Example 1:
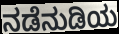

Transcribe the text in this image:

ನಡೆನುಡಿಯ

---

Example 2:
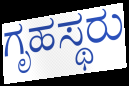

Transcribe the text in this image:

ಗೃಹಸ್ಥರು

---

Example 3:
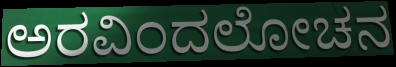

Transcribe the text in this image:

ಅರವಿಂದಲೋಚನ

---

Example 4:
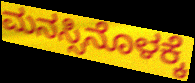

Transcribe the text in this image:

ಮನಸ್ಸಿನೊಳಕ್ಕೆ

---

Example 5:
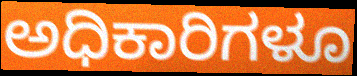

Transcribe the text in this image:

ಅಧಿಕಾರಿಗಳೂ